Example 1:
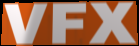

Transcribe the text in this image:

VFX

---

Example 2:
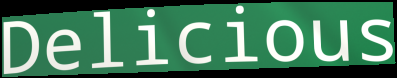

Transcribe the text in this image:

Delicious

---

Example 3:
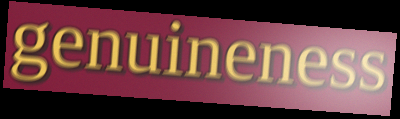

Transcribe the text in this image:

genuineness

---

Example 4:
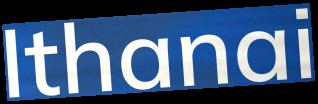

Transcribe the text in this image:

Ithanai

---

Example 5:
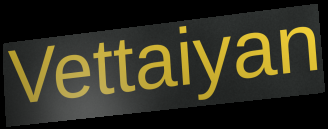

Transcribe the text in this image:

Vettaiyan